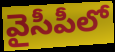
వైసీపీలో